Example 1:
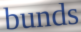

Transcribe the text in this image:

bunds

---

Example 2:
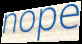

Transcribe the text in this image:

nope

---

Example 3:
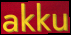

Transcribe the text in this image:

akku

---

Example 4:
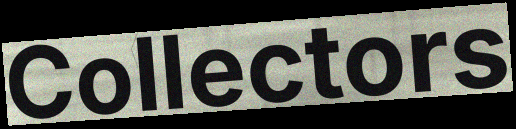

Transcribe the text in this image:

Collectors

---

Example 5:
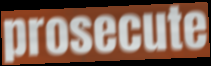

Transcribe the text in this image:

prosecute